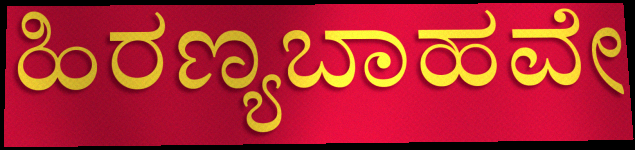
ಹಿರಣ್ಯಬಾಹವೇ